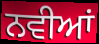
ਨਵੀਆਂ